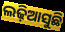
ଲଢ଼ିଆସୁଛି